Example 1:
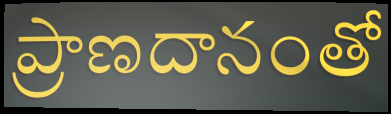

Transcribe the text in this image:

ప్రాణదానంతో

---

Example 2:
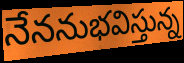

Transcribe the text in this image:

నేననుభవిస్తున్న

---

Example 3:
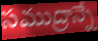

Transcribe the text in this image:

సముద్రాన్నే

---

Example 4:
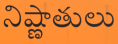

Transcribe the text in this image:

నిష్ణాతులు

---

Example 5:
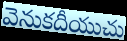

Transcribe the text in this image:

వెనుకదీయుచు